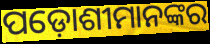
ପଡ଼ୋଶୀମାନଙ୍କର